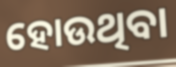
ହୋଉଥିବା